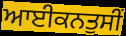
ਆਈਕਨਤੁਸੀਂ